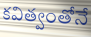
కవిత్వంతోనే